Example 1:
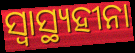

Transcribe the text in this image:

ସ୍ଵାସ୍ଥ୍ୟହୀନା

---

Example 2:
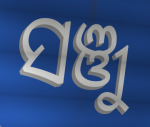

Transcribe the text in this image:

ସଞ୍ଜୁ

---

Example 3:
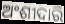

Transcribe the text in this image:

ଅଂଶୀଦାରି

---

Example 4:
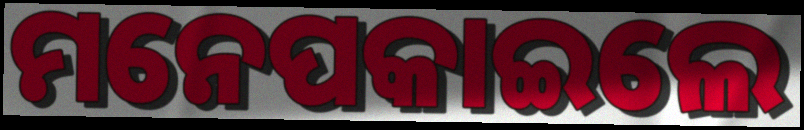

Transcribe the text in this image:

ମନେପକାଇଲେ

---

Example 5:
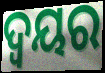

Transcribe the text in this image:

ଦ୍ଵୟର